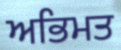
ਅਭਿਮਤ